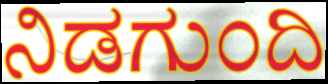
ನಿಡಗುಂದಿ